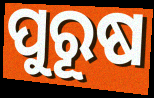
ପୁରୂଷ